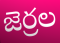
జెర్రల